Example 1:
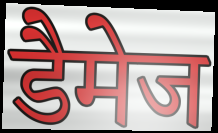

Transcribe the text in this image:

डैमेज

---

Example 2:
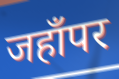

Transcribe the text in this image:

जहाँपर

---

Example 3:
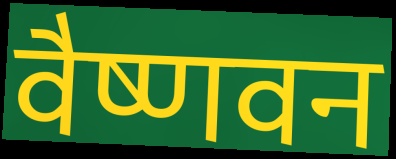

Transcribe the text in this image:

वैष्णवन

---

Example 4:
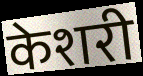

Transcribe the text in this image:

केशरी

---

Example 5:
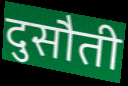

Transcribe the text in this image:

दुसौती